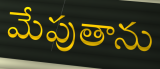
మేపుతాను